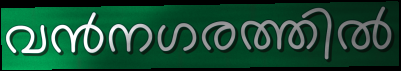
വൻനഗരത്തിൽ